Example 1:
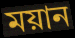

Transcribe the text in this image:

ময়ান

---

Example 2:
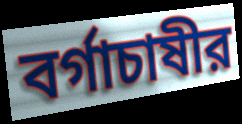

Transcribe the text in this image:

বর্গাচাষীর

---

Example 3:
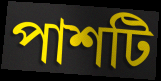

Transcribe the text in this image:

পাশটি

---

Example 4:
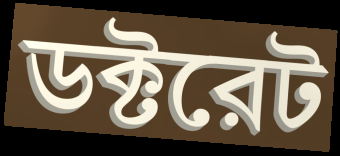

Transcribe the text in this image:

ডক্টরেট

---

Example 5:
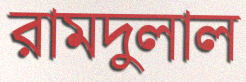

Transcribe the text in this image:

রামদুলাল